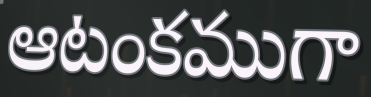
ఆటంకముగా